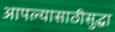
आपल्यासाठीसुद्धा